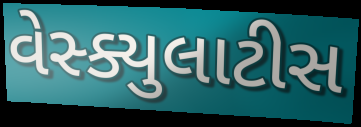
વેસ્ક્યુલાટીસ